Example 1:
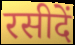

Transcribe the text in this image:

रसीदें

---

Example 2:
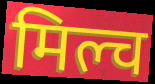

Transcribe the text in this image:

मिल्च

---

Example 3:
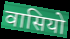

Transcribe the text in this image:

वासियो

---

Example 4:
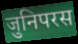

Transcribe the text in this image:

जुनिपरस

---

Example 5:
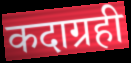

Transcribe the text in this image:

कदाग्रही